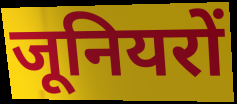
जूनियरों